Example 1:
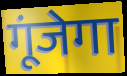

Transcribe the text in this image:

गूंजेगा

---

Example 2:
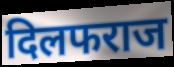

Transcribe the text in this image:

दिलफराज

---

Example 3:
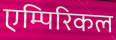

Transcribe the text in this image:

एम्पिरिकल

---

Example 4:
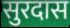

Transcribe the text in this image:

सुरदास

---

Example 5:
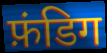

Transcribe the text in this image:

फ़ंडिग